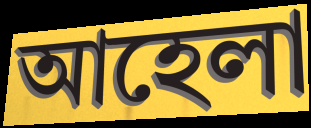
আহেলা